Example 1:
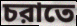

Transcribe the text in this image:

চরাতে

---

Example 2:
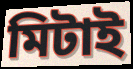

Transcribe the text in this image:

মিটাই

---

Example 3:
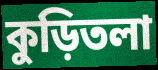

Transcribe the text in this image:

কুড়িতলা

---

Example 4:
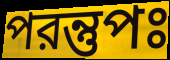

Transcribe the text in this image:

পরন্তুপঃ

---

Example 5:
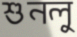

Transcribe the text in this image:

শুনলু